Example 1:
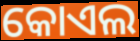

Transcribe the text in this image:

କୋଏଲ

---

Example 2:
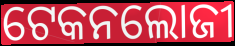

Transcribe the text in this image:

ଟେକନଲୋଜୀ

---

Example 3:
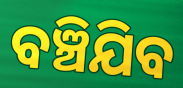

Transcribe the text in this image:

ବଞ୍ଚିଯିବ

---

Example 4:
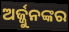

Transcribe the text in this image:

ଅର୍ଜ୍ଜୁନଙ୍କର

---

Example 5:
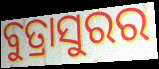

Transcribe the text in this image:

ବୁତ୍ରାସୁରର